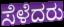
ಸೆಳೆದರು